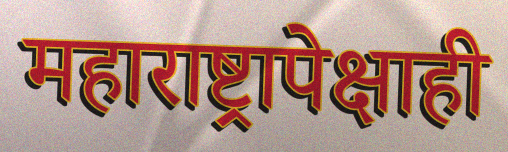
महाराष्ट्रापेक्षाही